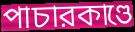
পাচারকাণ্ডে